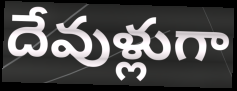
దేవుళ్లుగా